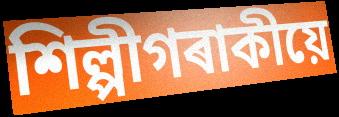
শিল্পীগৰাকীয়ে